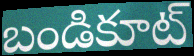
బండికూట్